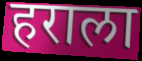
हराला